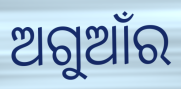
ଅଗୁଆଁର